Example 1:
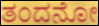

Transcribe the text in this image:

ತಂದನೋ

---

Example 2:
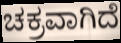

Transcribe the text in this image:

ಚಕ್ರವಾಗಿದೆ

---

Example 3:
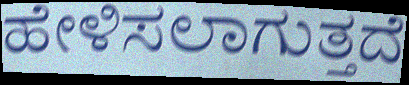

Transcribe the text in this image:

ಹೇಳಿಸಲಾಗುತ್ತದೆ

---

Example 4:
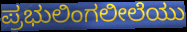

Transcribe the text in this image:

ಪ್ರಭುಲಿಂಗಲೀಲೆಯು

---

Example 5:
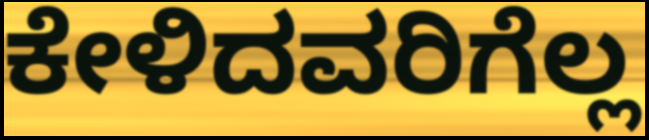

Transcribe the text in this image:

ಕೇಳಿದವರಿಗೆಲ್ಲ